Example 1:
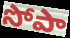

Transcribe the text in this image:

సోపా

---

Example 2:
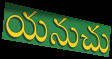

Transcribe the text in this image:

యనుచు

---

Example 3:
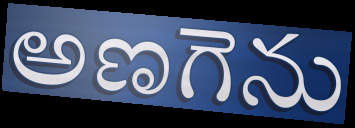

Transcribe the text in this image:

అణగెను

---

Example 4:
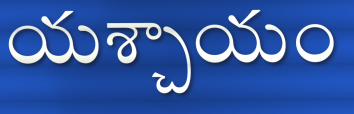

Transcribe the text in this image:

యశ్చాయం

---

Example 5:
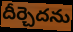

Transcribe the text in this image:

దీర్చెదను